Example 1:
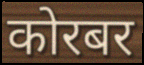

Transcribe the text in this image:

कोरबर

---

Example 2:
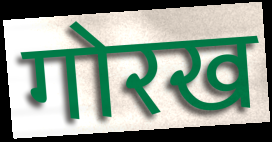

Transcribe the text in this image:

गोरख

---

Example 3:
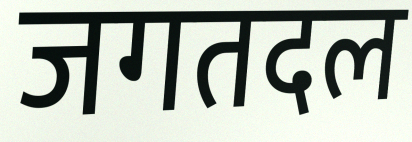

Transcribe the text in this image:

जगतदल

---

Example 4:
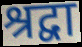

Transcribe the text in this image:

श्रद्वा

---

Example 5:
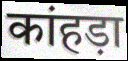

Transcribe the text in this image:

कांहड़ा